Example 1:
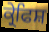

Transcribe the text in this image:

ਕ੍ਰੇਫਿਸ਼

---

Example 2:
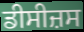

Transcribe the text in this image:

ਡੀਸੀਜ਼ਸ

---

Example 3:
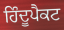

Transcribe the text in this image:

ਹਿੰਦੂਪੈਕਟ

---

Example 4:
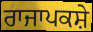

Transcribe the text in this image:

ਰਾਜਾਪਕਸ਼ੇ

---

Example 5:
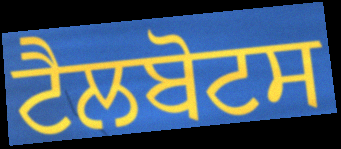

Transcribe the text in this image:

ਟੈਲਬੋਟਸ